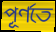
পূর্ণতে